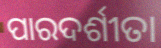
ପାରଦର୍ଶୀତା